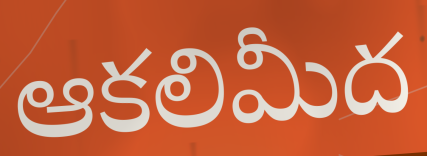
ఆకలిమీద